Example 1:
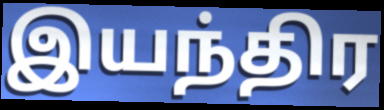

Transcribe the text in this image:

இயந்திர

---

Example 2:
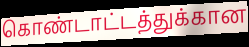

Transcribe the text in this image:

கொண்டாட்டத்துக்கான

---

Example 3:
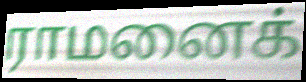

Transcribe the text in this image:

ராமனைக்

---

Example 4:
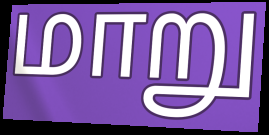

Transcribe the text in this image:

மாறு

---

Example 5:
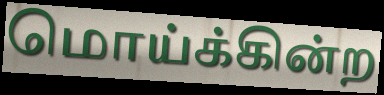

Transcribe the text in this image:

மொய்க்கின்ற